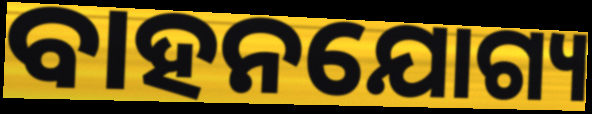
ବାହନଯୋଗ୍ୟ